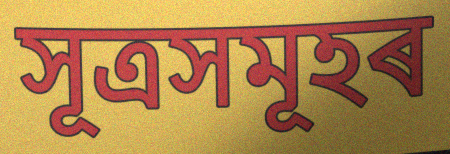
সূত্ৰসমূহৰ